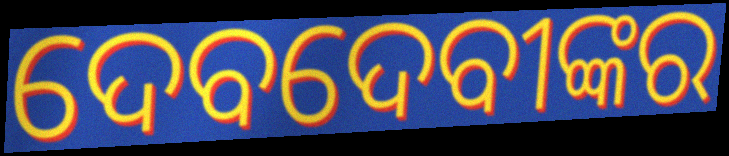
ଦେବଦେବୀଙ୍କର